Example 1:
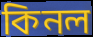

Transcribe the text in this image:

কিনল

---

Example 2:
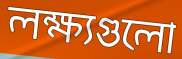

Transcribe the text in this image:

লক্ষ্যগুলো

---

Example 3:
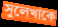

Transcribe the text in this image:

সুলেখাকে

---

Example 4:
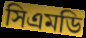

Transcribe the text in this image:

সিএমডি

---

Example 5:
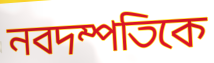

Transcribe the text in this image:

নবদম্পতিকে